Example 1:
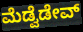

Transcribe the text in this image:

ಮೆಡ್ವೆಡೇವ್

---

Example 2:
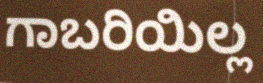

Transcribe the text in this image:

ಗಾಬರಿಯಿಲ್ಲ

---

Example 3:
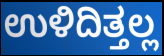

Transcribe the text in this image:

ಉಳಿದಿತ್ತಲ್ಲ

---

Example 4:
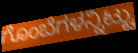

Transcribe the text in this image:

ಗೊಂಬೆಗಳನ್ನಿಟ್ಟು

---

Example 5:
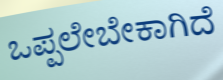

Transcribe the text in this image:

ಒಪ್ಪಲೇಬೇಕಾಗಿದೆ